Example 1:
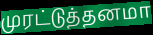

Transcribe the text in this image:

முரட்டுத்தனமா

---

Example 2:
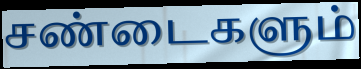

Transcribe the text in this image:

சண்டைகளும்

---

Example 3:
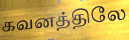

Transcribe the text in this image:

கவனத்திலே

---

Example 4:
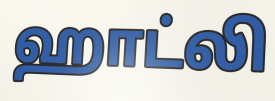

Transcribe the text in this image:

ஹாட்லி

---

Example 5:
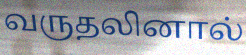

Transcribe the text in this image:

வருதலினால்